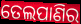
ତେଲପାଣିର